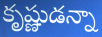
కృష్ణుడన్నా